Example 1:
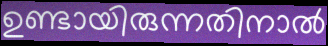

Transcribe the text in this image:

ഉണ്ടായിരുന്നതിനാൽ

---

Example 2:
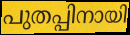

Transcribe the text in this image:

പുതപ്പിനായി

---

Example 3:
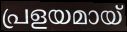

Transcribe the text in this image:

പ്രളയമായ്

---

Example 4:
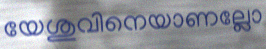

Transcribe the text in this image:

യേശുവിനെയാണല്ലോ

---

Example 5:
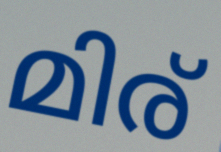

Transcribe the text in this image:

മിര്